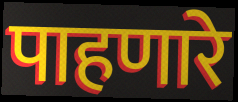
पाहणारे